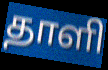
தாளி